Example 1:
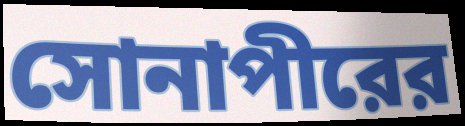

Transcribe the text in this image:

সোনাপীরের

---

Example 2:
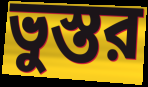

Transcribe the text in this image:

ভুস্তর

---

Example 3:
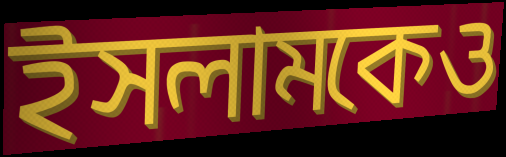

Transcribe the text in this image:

ইসলামকেও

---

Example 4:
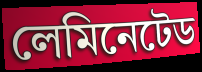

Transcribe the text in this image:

লেমিনেটেড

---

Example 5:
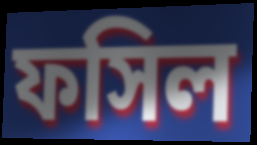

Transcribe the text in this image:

ফসিল